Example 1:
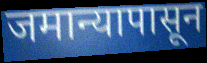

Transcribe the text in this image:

जमान्यापासून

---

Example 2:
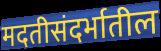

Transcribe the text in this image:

मदतीसंदर्भातील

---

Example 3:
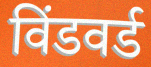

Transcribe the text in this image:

विंडवर्ड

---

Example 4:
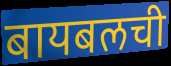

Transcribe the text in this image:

बायबलची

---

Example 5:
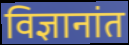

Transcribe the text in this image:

विज्ञानांत